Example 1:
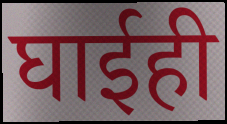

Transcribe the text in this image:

घाईही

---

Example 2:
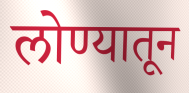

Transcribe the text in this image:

लोण्यातून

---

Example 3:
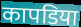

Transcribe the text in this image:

कापडिया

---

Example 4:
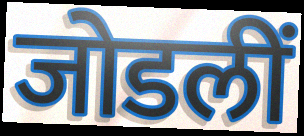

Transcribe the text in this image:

जोडलीं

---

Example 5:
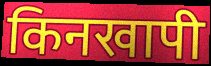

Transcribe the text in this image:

किनखापी